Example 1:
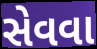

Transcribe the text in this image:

સેવવા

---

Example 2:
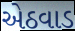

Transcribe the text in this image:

એઠવાડ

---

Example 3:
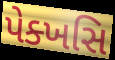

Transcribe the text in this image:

પેક્ખસિ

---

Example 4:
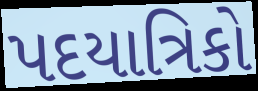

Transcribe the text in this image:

પદયાત્રિકો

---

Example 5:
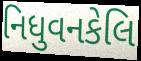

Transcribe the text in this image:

નિધુવનકેલિ